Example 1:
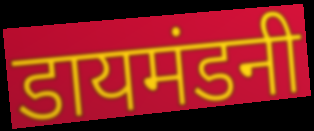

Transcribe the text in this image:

डायमंडनी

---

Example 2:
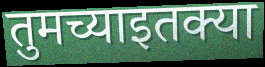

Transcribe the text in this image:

तुमच्याइतक्या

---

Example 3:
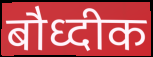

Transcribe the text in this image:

बौध्दीक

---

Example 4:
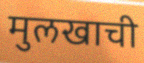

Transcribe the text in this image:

मुलखाची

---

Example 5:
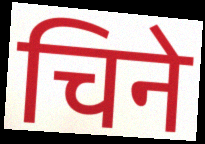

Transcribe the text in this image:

चिने